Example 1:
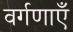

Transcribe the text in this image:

वर्गणाएँ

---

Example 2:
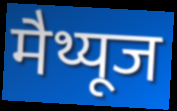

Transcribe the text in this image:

मैथ्‍यूज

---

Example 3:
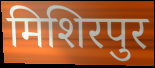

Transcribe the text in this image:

मिशिरपुर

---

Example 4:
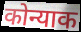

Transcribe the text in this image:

कोन्याक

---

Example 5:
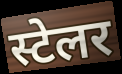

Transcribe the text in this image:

स्टेलर